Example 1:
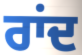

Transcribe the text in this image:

ਰਾਂਦ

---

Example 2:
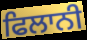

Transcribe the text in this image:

ਫਿਲਾਨੀ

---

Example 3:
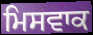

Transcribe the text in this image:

ਮਿਸਵਾਕ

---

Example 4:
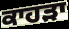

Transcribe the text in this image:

ਕਾਹੜਾ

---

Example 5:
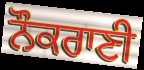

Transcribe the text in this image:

ਨੌਕਰਾਣੀ